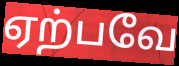
ஏற்பவே